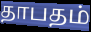
தாபதம்